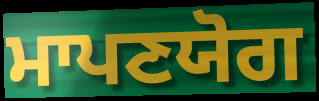
ਮਾਪਣਯੋਗ